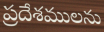
ప్రదేశములను